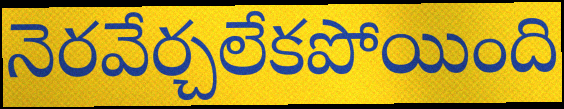
నెరవేర్చలేకపోయింది